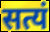
सत्यं